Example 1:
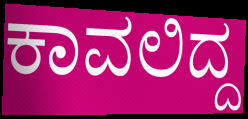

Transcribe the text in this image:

ಕಾವಲಿದ್ದ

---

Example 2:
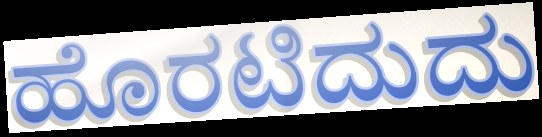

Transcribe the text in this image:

ಹೊರಟಿದುದು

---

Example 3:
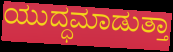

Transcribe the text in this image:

ಯುದ್ಧಮಾಡುತ್ತಾ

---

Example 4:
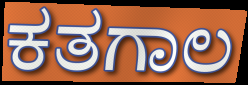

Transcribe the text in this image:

ಕತಗಾಲ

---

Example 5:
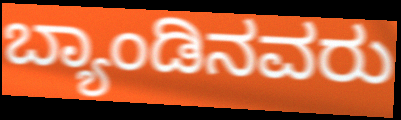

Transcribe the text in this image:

ಬ್ಯಾಂಡಿನವರು